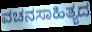
ವಚನಸಾಹಿತ್ಯದ